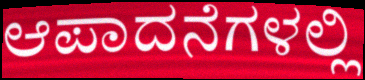
ಆಪಾದನೆಗಳಲ್ಲಿ